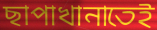
ছাপাখানাতেই